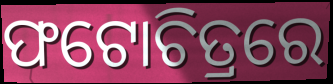
ଫଟୋଚିତ୍ରରେ